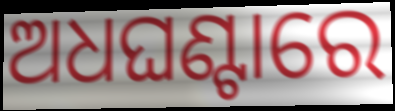
ଅଧଘଣ୍ଟାରେ